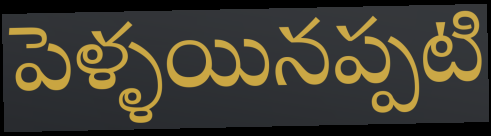
పెళ్ళయినప్పటి